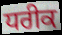
ਧਰੀਕ